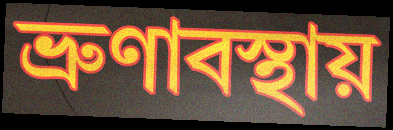
ভ্রুণাবস্থায়